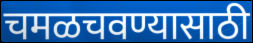
चमळचवण्यासाठी